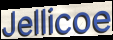
Jellicoe